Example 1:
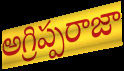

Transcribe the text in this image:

అగ్రిప్పరాజా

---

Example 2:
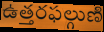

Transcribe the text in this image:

ఉత్తరఫల్గుణి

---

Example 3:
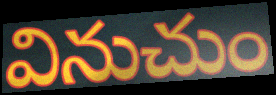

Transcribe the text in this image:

వినుచుం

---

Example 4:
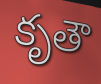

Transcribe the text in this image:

కృతౌ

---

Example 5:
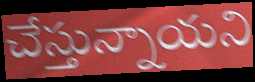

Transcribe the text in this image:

చేస్తున్నాయని